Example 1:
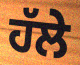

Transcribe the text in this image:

ਹੱਲੇ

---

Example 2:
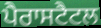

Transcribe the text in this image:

ਪੈਰਾਸਟੈਟਲ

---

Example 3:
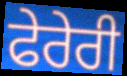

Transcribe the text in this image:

ਫੇਰੇਰੀ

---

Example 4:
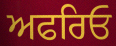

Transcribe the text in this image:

ਅਫਰਿਓ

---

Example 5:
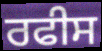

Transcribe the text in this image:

ਰਫੀਸ